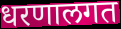
धरणालगत